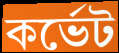
কর্ভেট